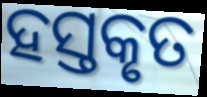
ହସ୍ତକୃତ